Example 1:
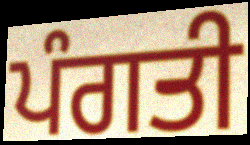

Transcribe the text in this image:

ਪੰਗਤੀ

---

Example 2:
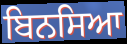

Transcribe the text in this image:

ਬਿਨਸਿਆ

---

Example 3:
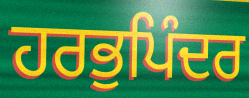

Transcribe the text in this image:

ਹਰਭੁਪਿੰਦਰ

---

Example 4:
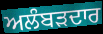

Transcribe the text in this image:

ਅਲੰਬੜਦਾਰ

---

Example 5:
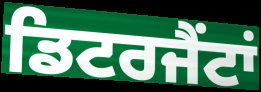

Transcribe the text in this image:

ਡਿਟਰਜੈਂਟਾਂ